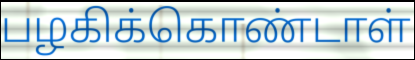
பழகிக்கொண்டாள்